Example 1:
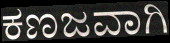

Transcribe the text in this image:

ಕಣಜವಾಗಿ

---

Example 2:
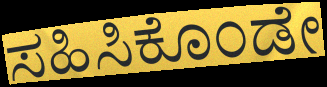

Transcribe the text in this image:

ಸಹಿಸಿಕೊಂಡೇ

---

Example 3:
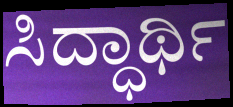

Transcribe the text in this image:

ಸಿದ್ಧಾರ್ಥಿ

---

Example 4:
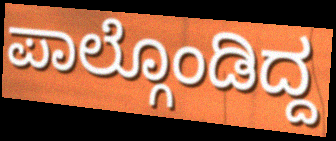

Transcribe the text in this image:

ಪಾಲ್ಗೊಂಡಿದ್ದ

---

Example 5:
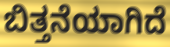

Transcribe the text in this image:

ಬಿತ್ತನೆಯಾಗಿದೆ